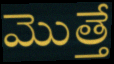
మొత్తే